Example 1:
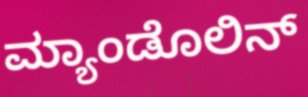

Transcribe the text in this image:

ಮ್ಯಾಂಡೊಲಿನ್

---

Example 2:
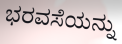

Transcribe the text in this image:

ಭರವಸೆಯನ್ನು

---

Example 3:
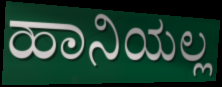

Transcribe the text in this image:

ಹಾನಿಯಲ್ಲ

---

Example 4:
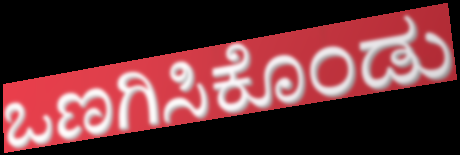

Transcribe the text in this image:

ಒಣಗಿಸಿಕೊಂಡು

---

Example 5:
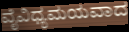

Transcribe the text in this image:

ವೈವಿಧ್ಯಮಯವಾದ